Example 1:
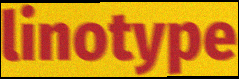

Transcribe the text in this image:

linotype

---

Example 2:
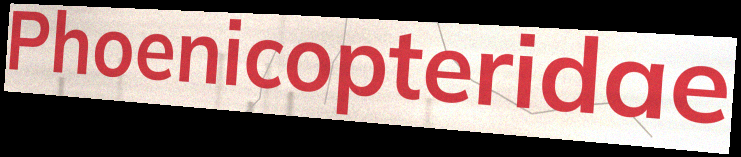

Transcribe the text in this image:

Phoenicopteridae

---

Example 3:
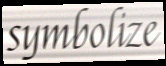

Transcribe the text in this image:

symbolize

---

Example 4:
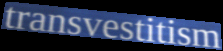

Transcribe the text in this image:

transvestitism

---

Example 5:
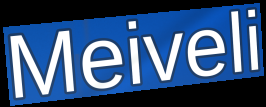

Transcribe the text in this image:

Meiveli